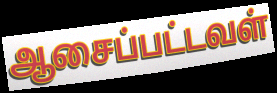
ஆசைப்பட்டவள்